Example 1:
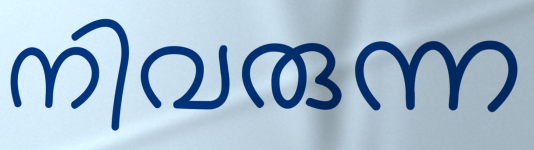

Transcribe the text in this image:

നിവരുന്ന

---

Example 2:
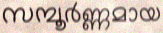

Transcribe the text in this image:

സമ്പൂർണ്ണമായ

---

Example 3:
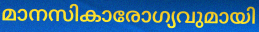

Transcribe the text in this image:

മാനസികാരോഗ്യവുമായി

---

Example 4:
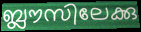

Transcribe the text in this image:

ബ്ലൗസിലേക്കു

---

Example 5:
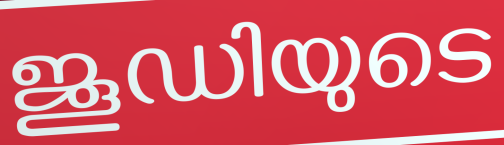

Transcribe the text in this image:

ജൂഡിയുടെ